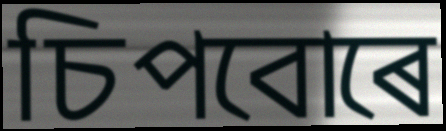
চিপবোৰে